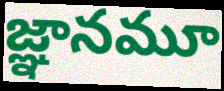
జ్ఞానమూ